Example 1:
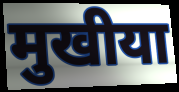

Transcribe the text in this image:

मुखीया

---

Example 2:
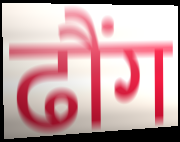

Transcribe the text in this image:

ढौंग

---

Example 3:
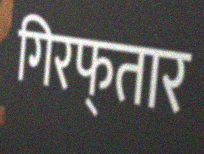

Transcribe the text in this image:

गिरफ्‌तार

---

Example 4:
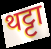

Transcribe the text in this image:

थट्टा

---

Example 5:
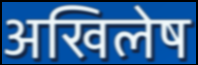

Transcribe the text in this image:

अखिलेष